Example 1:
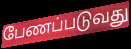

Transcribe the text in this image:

பேணப்படுவது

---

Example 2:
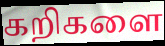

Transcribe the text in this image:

கறிகளை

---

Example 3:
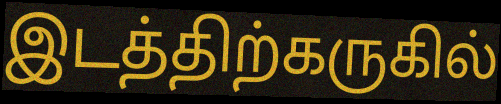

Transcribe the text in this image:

இடத்திற்கருகில்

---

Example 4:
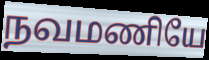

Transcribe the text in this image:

நவமணியே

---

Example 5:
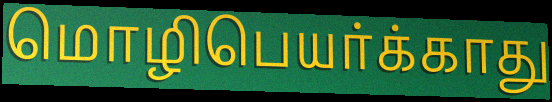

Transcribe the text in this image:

மொழிபெயர்க்காது